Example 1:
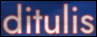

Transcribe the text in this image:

ditulis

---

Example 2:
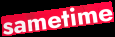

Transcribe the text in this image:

sametime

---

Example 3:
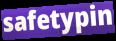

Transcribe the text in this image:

safetypin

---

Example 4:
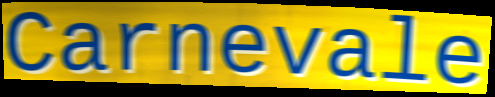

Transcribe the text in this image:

Carnevale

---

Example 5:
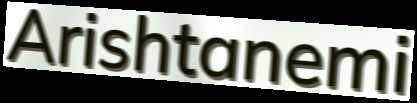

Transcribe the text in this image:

Arishtanemi